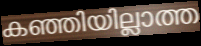
കഞ്ഞിയില്ലാത്ത